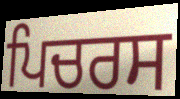
ਪਿਚਰਸ